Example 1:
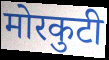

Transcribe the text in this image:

मोरकुटी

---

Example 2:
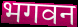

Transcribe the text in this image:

भगवन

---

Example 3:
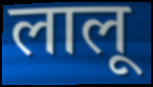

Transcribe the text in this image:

लालू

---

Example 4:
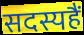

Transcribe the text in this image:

सदस्यहैं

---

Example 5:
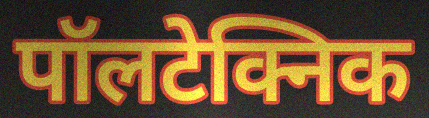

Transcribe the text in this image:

पॉलटेक्निक